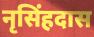
नृसिंहदास